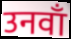
उनवाँ